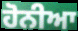
ਹੋਨੀਆ